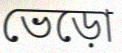
ভেড়ো